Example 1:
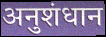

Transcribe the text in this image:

अनुशंधान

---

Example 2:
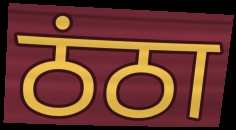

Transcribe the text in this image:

ठंठा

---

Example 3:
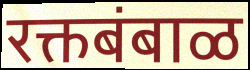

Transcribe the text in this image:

रक्तबंबाळ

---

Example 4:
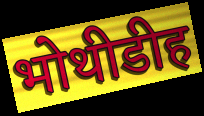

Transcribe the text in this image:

भोथीडीह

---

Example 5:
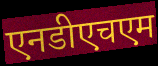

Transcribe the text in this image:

एनडीएचएम